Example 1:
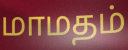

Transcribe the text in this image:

மாமதம்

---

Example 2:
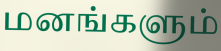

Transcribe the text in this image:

மனங்களும்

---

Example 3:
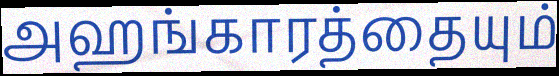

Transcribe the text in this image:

அஹங்காரத்தையும்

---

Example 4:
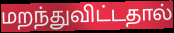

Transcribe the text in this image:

மறந்துவிட்டதால்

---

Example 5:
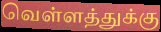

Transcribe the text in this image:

வெள்ளத்துக்கு